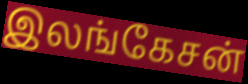
இலங்கேசன்